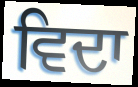
ਵਿਦਾ